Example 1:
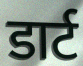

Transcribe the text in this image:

डार्ट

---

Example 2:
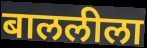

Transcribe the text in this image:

बाललीला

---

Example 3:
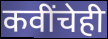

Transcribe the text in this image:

कवींचेही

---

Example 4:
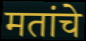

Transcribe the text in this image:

मतांचे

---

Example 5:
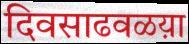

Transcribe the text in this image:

दिवसाढवळय़ा